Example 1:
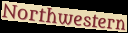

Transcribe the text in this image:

Northwestern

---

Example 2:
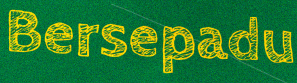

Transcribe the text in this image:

Bersepadu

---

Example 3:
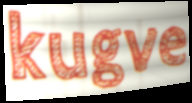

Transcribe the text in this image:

kugve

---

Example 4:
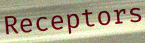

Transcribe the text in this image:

Receptors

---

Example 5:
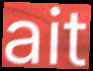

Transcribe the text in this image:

ait